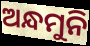
ଅନ୍ଧମୁନି